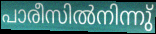
പാരീസിൽനിന്നു്